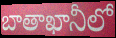
బాతాఖానీలో